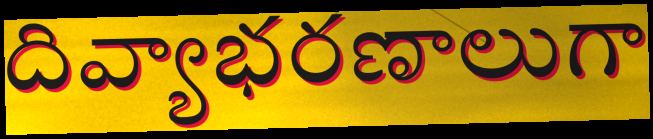
దివ్యాభరణాలుగా